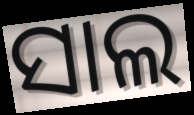
ସାଲ